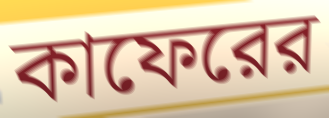
কাফেরের